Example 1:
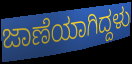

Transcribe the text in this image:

ಜಾಣೆಯಾಗಿದ್ದಳು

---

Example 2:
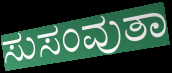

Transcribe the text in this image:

ಸುಸಂವುತಾ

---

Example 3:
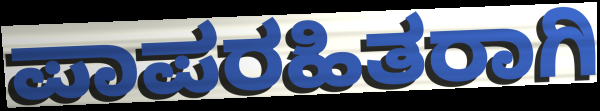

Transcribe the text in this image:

ಪಾಪರಹಿತರಾಗಿ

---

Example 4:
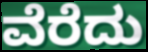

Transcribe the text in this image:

ವೆರೆದು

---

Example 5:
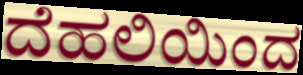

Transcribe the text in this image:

ದೆಹಲಿಯಿಂದ